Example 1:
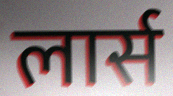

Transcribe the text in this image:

लार्स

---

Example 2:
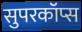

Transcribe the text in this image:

सुपरकॉप्स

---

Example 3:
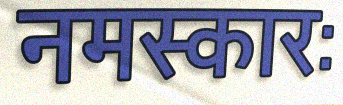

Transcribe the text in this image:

नमस्कारः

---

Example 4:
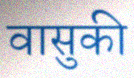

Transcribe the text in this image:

वासुकी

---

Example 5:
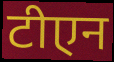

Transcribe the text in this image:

टीएन